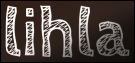
lihla